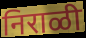
निराळी